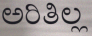
ಅರಿತಿಲ್ಲ